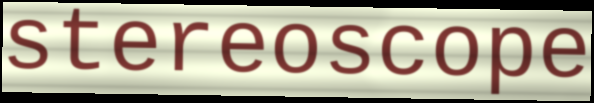
stereoscope